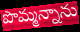
పొమ్మన్నాను